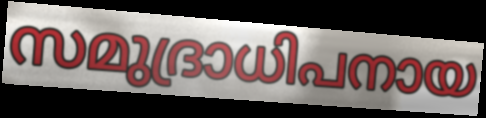
സമുദ്രാധിപനായ